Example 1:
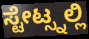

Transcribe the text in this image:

ಸ್ಟೇಟ್ಸ್ನಲ್ಲಿ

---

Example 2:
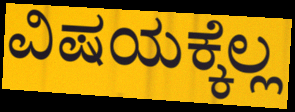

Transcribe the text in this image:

ವಿಷಯಕ್ಕೆಲ್ಲ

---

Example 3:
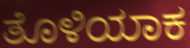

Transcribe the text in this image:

ತೊಳಿಯಾಕ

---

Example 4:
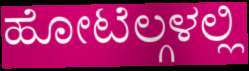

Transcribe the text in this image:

ಹೋಟೆಲ್ಗಳಲ್ಲಿ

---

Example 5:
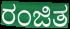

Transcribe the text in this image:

ರಂಜಿತ